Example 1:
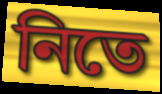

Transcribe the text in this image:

নিতে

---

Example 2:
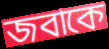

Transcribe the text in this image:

জবাকে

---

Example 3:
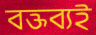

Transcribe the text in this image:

বক্তব্যই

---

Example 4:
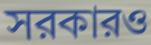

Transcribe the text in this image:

সরকারও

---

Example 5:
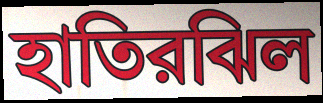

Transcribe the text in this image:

হাতিরঝিল